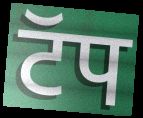
टॅप